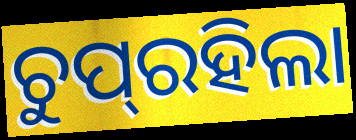
ଚୁପ୍‌ରହିଲା